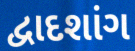
દ્વાદશાંગ